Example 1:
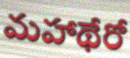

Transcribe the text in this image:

మహాథేరో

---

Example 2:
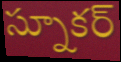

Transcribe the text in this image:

స్నూకర్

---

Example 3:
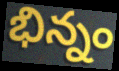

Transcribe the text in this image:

భిన్నం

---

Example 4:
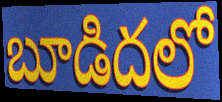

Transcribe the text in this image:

బూడిదలో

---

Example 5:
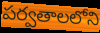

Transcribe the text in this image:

పర్వతాలలోని